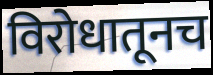
विरोधातूनच